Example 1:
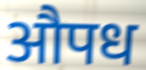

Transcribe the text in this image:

औपध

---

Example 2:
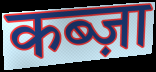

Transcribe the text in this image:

कब्ज़ा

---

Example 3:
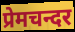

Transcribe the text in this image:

प्रेमचन्दर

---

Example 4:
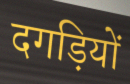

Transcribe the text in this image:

दगड़ियों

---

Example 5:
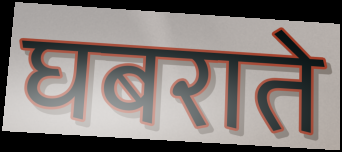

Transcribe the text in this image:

घबराते